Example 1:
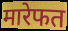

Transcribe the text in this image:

मारेफत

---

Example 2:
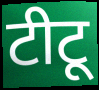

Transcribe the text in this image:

टीटू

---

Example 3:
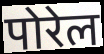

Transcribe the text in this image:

पोरेल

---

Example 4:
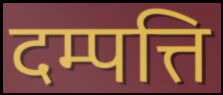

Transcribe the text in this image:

दम्पत्ति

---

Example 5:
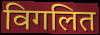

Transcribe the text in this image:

विगलित